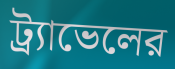
ট্র্যাভেলের